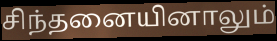
சிந்தனையினாலும்